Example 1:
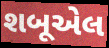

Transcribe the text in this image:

શબૂએલ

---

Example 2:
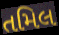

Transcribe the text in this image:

તમિલ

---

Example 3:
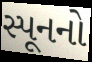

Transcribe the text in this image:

સ્પૂનનો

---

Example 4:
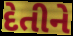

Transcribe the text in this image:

દેતીને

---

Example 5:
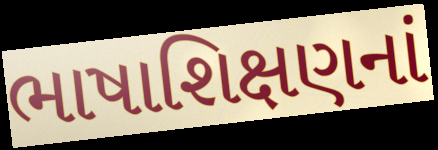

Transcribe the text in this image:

ભાષાશિક્ષણનાં